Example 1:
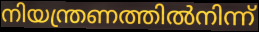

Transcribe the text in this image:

നിയന്ത്രണത്തിൽനിന്ന്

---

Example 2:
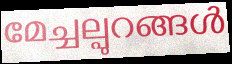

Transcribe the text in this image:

മേച്ചല്പുറങ്ങൾ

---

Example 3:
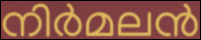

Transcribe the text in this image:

നിർമലൻ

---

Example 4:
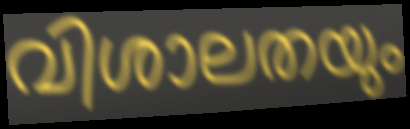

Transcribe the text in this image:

വിശാലതയും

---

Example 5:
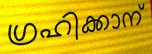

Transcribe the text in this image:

ഗ്രഹിക്കാന്